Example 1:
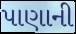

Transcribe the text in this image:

પાણાની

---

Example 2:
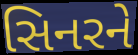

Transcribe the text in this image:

સિનરને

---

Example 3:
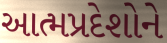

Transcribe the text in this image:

આત્મપ્રદેશોને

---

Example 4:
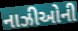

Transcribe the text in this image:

નાઝીઓની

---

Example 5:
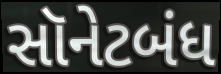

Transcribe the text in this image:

સૉનેટબંધ